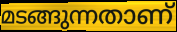
മടങ്ങുന്നതാണ്